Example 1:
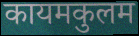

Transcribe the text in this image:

कायमकुलम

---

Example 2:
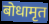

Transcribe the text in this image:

बोधामृत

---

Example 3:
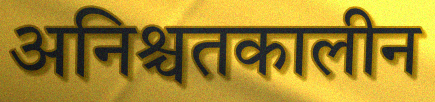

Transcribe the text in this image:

अनिश्चतकालीन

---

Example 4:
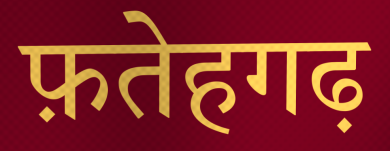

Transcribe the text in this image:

फ़तेहगढ़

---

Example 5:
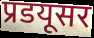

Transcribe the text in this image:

प्रडयूसर